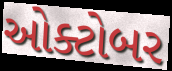
ઓક્ટોબર